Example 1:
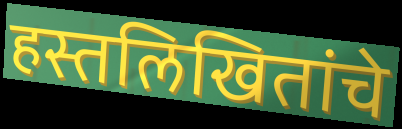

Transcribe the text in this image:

हस्तलिखितांचे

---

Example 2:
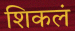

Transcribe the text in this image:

शिकलं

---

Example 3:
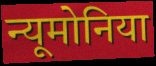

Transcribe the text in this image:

न्यूमोनिया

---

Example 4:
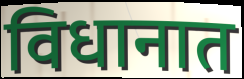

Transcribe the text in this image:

विधानात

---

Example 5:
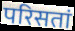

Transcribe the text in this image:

परिसतां